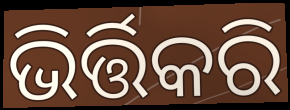
ଭିର୍ତ୍ତିକରି